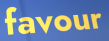
favour